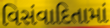
વિસંવાદિતામાં